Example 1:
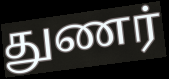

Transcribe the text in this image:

துணர்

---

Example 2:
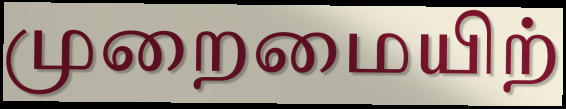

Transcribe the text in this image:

முறைமையிற்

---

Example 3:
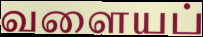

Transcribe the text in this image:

வளையப்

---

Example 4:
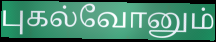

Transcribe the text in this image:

புகல்வோனும்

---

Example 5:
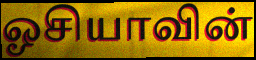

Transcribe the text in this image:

ஓசியாவின்